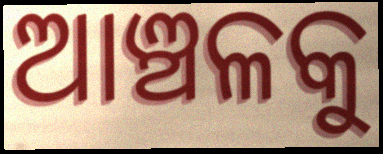
ଆଞ୍ଚଳକୁ